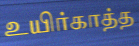
உயிர்காத்த